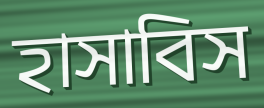
হাসাবিস